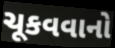
ચૂકવવાનો